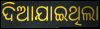
ଦିଆଯାଇଥିଲା